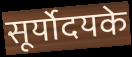
सूर्योदयके